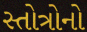
સ્તોત્રોનો